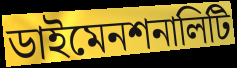
ডাইমেনশনালিটি